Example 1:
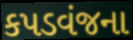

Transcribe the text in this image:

કપડવંજના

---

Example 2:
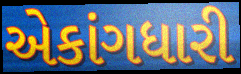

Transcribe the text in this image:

એકાંગધારી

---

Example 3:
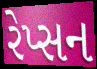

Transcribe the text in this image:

રેપ્સન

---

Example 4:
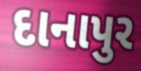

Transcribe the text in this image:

દાનાપુર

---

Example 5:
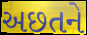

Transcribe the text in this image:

અછતને